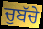
ਚੁਬੱਚੇ